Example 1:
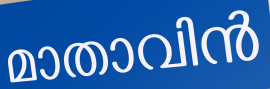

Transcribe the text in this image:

മാതാവിൻ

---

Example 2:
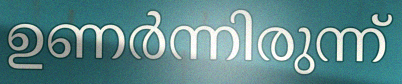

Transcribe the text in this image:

ഉണർന്നിരുന്ന്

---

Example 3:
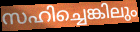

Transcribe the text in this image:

സഹിച്ചെങ്കിലും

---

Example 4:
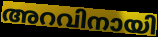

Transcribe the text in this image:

അറവിനായി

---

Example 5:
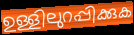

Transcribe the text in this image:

ഉള്ളിലുറപ്പിക്കുക